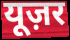
यूज़र